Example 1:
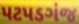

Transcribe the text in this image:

પટપડગંજ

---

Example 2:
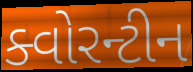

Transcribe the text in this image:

ક્વોરન્ટીન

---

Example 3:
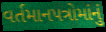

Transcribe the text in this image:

વર્તમાનપત્રોમાંનું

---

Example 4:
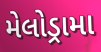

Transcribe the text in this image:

મેલોડ્રામા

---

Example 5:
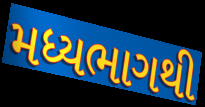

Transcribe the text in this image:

મધ્યભાગથી